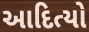
આદિત્યો